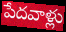
పేదవాళ్లు